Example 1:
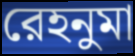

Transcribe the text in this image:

রেহনুমা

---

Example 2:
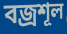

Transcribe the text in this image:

বজ্রশূল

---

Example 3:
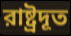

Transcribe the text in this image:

রাষ্ট্রদূত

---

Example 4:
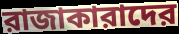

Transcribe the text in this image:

রাজাকারাদের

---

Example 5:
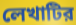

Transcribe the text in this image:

লেখাটির